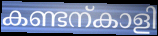
കണ്ടന്കാളി